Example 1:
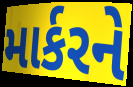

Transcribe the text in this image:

માર્કરને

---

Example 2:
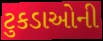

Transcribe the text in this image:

ટુકડાઓની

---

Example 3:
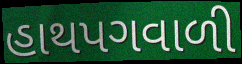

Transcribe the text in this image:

હાથપગવાળી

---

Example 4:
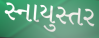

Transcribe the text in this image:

સ્નાયુસ્તર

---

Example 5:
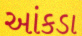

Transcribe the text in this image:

આંકડા